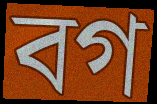
বগ